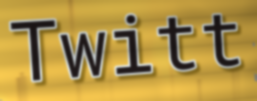
Twitt